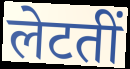
लेटतीं